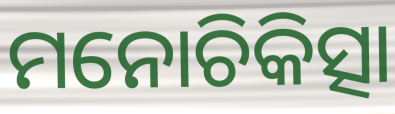
ମନୋଚିକିତ୍ସା